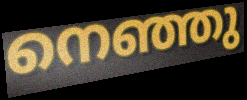
നെഞ്ഞു